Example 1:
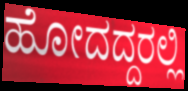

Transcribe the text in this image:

ಹೋದದ್ದರಲ್ಲಿ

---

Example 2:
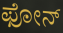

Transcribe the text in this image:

ಫೋನ್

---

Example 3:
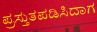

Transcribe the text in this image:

ಪ್ರಸ್ತುತಪಡಿಸಿದಾಗ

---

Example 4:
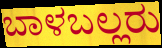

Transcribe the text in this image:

ಬಾಳಬಲ್ಲರು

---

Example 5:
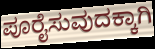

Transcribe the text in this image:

ಪೂರೈಸುವುದಕ್ಕಾಗಿ